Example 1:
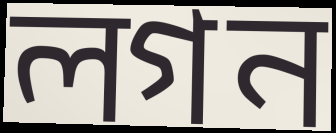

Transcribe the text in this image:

লগন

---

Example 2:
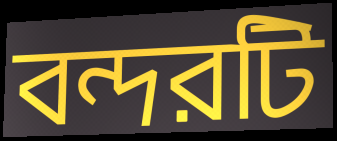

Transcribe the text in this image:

বন্দরটি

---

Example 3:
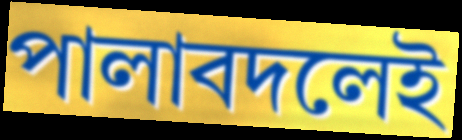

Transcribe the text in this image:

পালাবদলেই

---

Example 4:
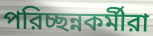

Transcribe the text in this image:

পরিচ্ছন্নকর্মীরা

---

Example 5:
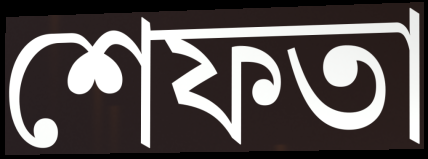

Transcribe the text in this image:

শেফতা